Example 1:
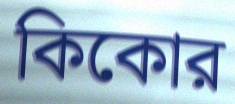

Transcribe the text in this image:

কিকোর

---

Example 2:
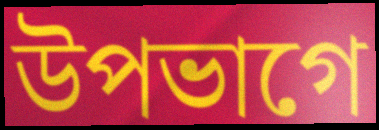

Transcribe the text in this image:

উপভাগে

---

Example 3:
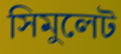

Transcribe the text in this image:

সিমুলেট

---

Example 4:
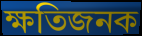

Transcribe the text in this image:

ক্ষতিজনক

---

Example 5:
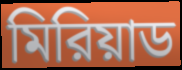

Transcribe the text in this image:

মিরিয়াড